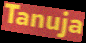
Tanuja